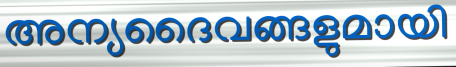
അന്യദൈവങ്ങളുമായി